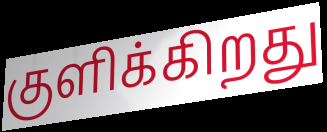
குளிக்கிறது